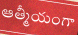
ఆత్మీయంగా